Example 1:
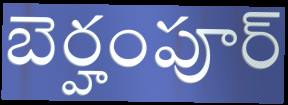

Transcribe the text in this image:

బెర్హంపూర్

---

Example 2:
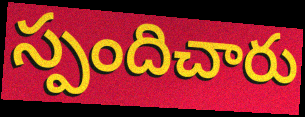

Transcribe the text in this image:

స్పందిచారు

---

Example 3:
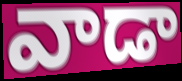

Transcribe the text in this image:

వాడా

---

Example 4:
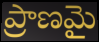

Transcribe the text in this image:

ప్రాణమై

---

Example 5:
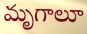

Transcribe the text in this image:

మృగాలూ